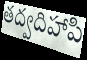
తద్వదిహాపి